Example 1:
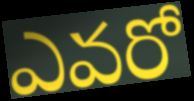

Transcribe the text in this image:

ఎవరో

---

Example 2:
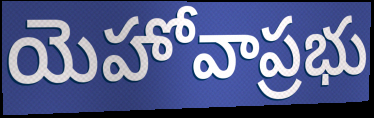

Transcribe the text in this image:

యెహోవాప్రభు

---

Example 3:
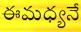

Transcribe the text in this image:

ఈమధ్యనే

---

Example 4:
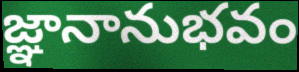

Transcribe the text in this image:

జ్ఞానానుభవం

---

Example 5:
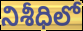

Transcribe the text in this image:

నిశీధిలో